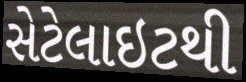
સેટેલાઇટથી